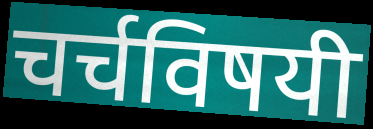
चर्चविषयी